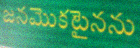
జనమొకటైనను